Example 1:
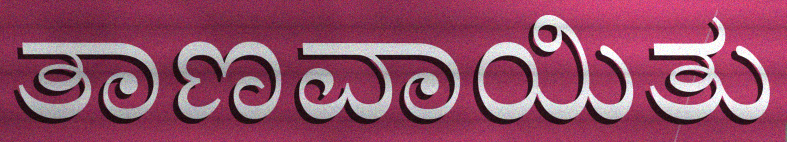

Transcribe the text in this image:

ತಾಣವಾಯಿತು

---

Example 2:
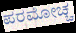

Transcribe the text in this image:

ಪರಮೋಚ್ಚ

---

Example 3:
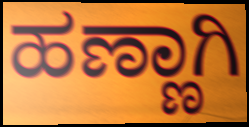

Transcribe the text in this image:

ಹಣ್ಣಾಗಿ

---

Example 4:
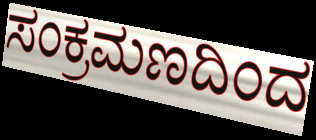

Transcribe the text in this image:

ಸಂಕ್ರಮಣದಿಂದ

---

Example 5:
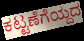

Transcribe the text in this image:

ಕಟ್ಟಣೆಗೆಯ್ದದ